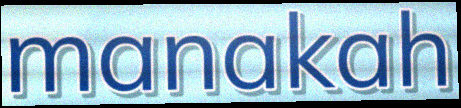
manakah